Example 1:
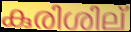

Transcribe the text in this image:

കുരിശില്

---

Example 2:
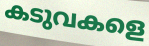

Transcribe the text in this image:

കടുവകളെ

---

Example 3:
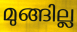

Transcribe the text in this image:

മുങ്ങില്ല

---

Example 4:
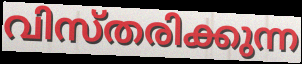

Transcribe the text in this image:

വിസ്തരിക്കുന്ന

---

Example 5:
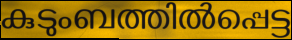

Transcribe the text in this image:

കുടുംബത്തിൽപ്പെട്ട